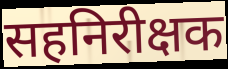
सहनिरीक्षक